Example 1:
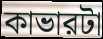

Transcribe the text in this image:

কাভারটা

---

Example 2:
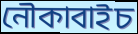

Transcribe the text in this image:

নৌকাবাইচ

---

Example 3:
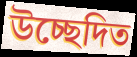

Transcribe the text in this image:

উচ্ছেদিত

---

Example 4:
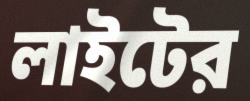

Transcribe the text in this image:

লাইটের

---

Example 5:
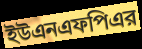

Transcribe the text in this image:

ইউএনএফপিএর